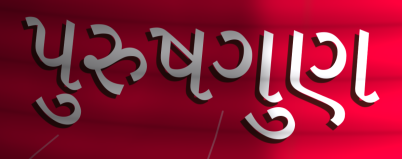
પુરુષગુણ